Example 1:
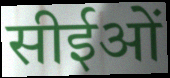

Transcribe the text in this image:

सीईओं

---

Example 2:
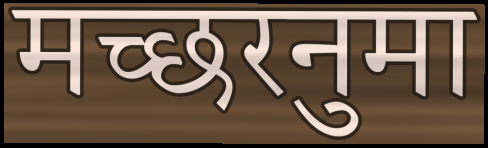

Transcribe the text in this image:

मच्छरनुमा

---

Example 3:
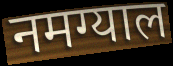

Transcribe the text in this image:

नमग्याल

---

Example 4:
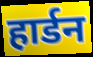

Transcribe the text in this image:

हार्डन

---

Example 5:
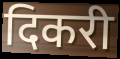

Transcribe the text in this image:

दिकरी